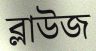
ব্লাউজ